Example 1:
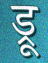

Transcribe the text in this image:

ड्रू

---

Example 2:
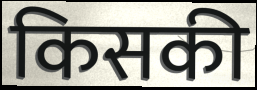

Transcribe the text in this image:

किसकी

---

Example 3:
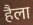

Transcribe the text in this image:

हैला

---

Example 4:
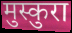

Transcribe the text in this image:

मुस्कुरा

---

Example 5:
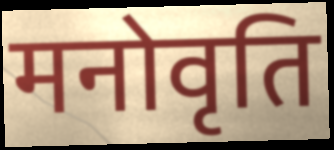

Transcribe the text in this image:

मनोवृति